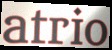
atrio